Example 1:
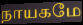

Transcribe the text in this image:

நாயகமே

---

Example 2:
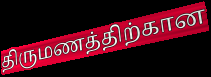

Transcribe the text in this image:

திருமணத்திற்கான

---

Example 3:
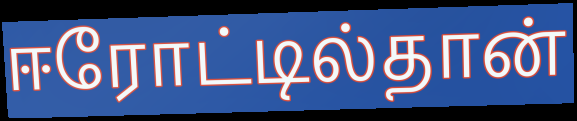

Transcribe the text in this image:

ஈரோட்டில்தான்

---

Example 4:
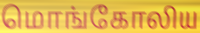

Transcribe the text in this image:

மொங்கோலிய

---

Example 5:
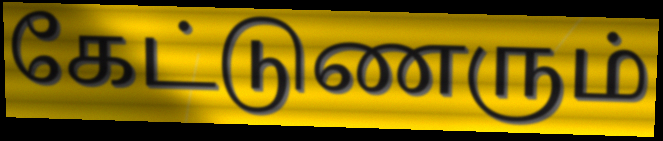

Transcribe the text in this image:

கேட்டுணரும்